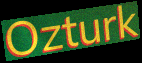
Ozturk